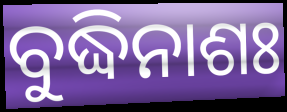
ବୁଦ୍ଧିନାଶଃ